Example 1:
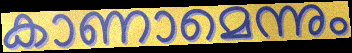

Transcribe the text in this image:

കാണാമെന്നും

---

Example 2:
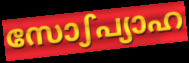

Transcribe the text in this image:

സോഽപ്യാഹ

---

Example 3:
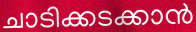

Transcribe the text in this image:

ചാടിക്കടക്കാൻ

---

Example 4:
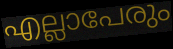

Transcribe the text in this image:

എല്ലാപേരും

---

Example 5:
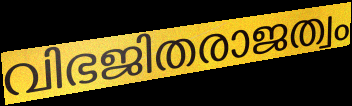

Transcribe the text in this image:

വിഭജിതരാജത്വം